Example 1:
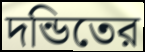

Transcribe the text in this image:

দন্ডিতের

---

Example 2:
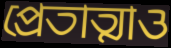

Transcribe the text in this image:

প্রেতাত্মাও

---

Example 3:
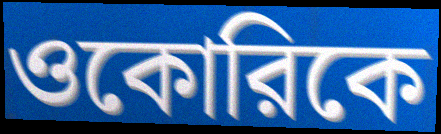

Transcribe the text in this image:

ওকোরিকে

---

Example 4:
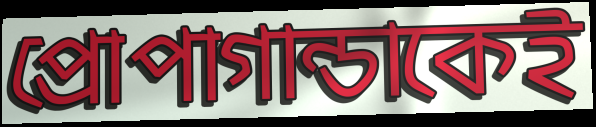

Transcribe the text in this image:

প্রোপাগান্ডাকেই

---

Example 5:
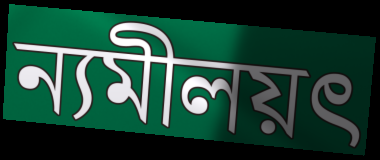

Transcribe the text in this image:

ন্যমীলয়ৎ